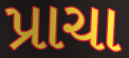
પ્રાચા